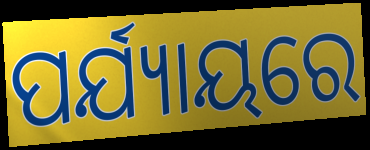
ପର୍ଯ୍ୟାୟରେ